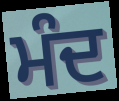
ਮੰਦ